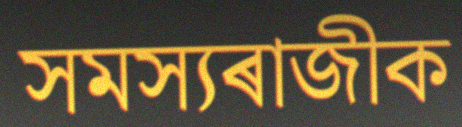
সমস্যৰাজীক